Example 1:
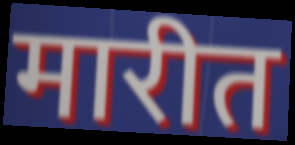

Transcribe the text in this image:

मारीत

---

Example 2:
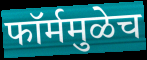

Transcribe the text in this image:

फॉर्ममुळेच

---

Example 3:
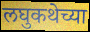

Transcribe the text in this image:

लघुकथेच्या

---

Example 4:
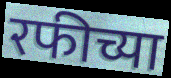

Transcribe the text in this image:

रफीच्या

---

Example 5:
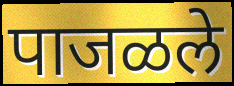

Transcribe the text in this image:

पाजळले